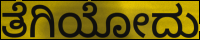
ತೆಗಿಯೋದು